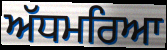
ਅੱਧਮਰਿਆ